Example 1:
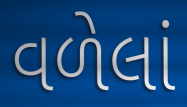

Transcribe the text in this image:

વળેલાં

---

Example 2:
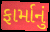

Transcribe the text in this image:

ફાર્માનું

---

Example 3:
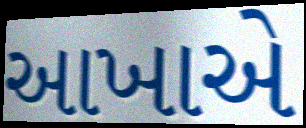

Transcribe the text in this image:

આખાએ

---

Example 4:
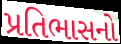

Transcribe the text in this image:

પ્રતિભાસનો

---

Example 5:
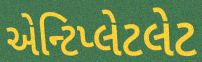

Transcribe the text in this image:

એન્ટિપ્લેટલેટ